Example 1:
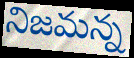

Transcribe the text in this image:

నిజమన్న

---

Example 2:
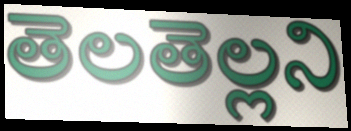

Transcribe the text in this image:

తెలతెల్లని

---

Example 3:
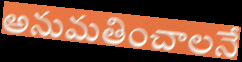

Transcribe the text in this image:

అనుమతించాలనే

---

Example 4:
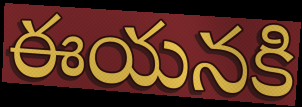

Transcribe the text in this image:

ఈయనకి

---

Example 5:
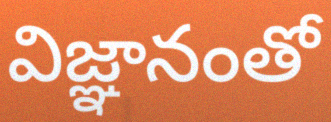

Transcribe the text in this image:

విజ్ఞానంతో